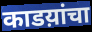
काडय़ांचा